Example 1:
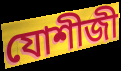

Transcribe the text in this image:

যোশীজী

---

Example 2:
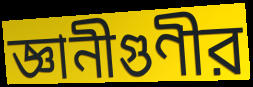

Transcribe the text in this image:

জ্ঞানীগুণীর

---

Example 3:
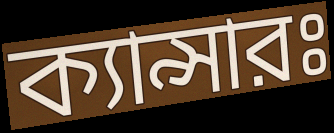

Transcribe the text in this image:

ক্যান্সারঃ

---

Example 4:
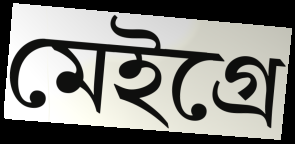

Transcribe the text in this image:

মেইগ্রে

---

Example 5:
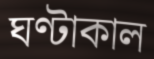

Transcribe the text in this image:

ঘণ্টাকাল